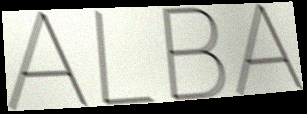
ALBA